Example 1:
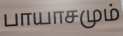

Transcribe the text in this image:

பாயாசமும்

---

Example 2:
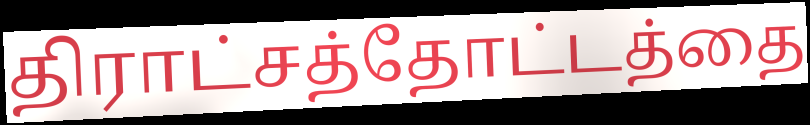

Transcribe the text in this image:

திராட்சத்தோட்டத்தை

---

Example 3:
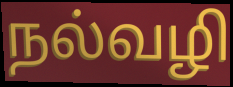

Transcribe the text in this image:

நல்வழி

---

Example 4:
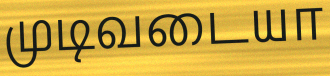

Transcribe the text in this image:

முடிவடையா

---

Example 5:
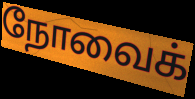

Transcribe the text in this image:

நோவைக்